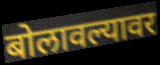
बोलावल्यावर